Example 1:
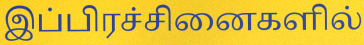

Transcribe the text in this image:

இப்பிரச்சினைகளில்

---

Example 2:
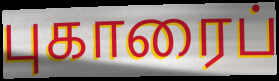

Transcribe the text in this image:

புகாரைப்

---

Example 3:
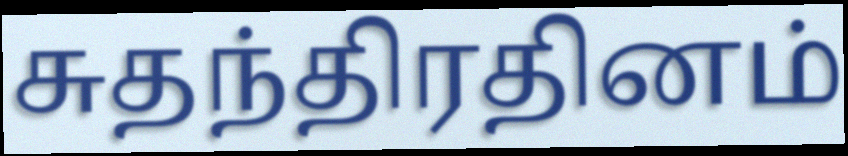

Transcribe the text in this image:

சுதந்திரதினம்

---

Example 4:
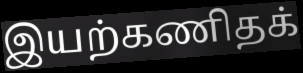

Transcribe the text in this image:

இயற்கணிதக்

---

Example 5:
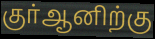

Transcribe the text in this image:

குர்ஆனிற்கு